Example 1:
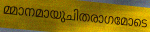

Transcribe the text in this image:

മ്മാനമായുചിതരാഗമോടെ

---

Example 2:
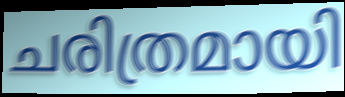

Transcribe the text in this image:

ചരിത്രമായി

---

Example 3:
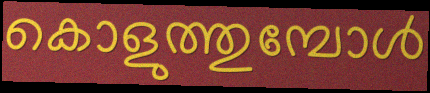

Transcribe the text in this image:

കൊളുത്തുമ്പോൾ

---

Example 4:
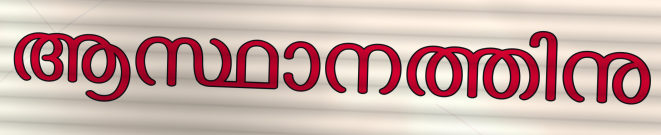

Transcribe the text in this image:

ആസ്ഥാനത്തിനു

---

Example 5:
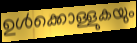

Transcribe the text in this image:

ഉൾക്കൊള്ളുകയും